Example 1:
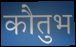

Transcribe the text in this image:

कौतुभ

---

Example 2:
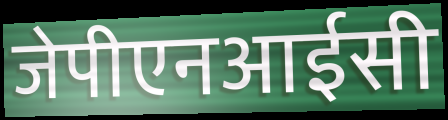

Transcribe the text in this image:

जेपीएनआईसी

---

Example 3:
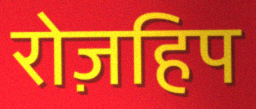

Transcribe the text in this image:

रोज़हिप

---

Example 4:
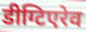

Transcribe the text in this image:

डीग्टिएरेव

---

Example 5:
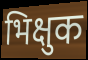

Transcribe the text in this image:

भिक्षुक